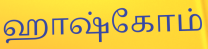
ஹாஷ்கோம்